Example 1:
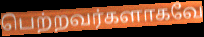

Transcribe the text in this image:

பெற்றவர்களாகவே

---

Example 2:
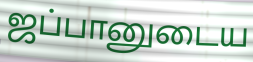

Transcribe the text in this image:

ஜப்பானுடைய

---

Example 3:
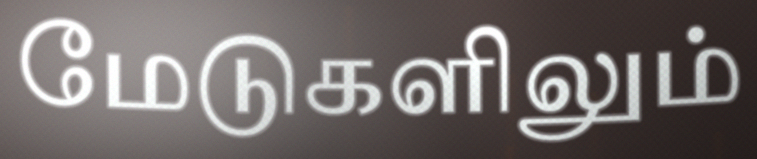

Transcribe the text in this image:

மேடுகளிலும்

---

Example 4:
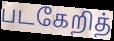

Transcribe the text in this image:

படகேறித்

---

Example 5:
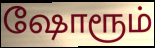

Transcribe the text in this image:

ஷோரூம்